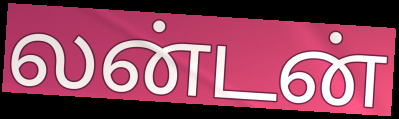
லன்டன்